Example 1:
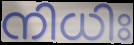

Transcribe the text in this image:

നിധിഃ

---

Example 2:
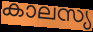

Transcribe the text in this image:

കാലസ്യ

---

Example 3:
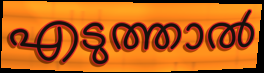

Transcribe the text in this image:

എടുത്താൽ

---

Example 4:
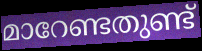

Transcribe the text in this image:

മാറേണ്ടതുണ്ട്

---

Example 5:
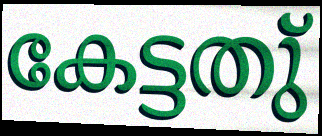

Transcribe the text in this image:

കേട്ടതു്